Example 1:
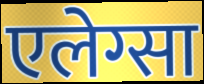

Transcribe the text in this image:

एलेग्सा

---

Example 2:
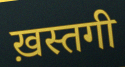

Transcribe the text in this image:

ख़स्तगी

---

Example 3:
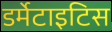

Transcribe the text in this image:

डर्मेटाइटिस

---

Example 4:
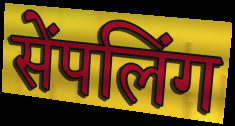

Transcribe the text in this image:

सेंपलिंग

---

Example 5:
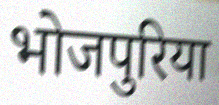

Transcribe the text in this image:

भोजपुरिया